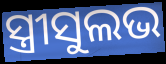
ସ୍ତ୍ରୀସୁଲଭ